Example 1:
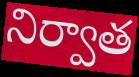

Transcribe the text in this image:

నిర్వాత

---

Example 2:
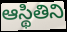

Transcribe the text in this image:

ఆస్థితిని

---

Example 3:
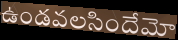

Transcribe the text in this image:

ఉండవలసిందేమో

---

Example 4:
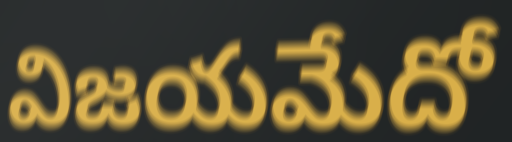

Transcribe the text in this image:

విజయమేదో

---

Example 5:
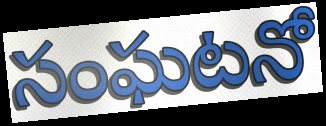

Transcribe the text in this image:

సంఘటనో